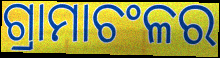
ଗ୍ରାମାଚଂଳର